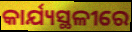
କାର୍ଯ୍ୟସ୍ଥଳୀରେ